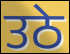
उठे